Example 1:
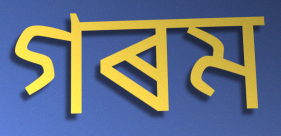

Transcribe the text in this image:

গৰম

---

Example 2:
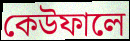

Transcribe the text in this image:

কেউফালে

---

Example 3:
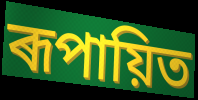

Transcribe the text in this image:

ৰূপায়িত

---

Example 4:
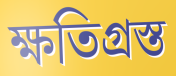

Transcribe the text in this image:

ক্ষতিগ্ৰস্ত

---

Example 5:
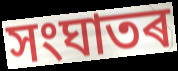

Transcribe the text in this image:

সংঘাতৰ